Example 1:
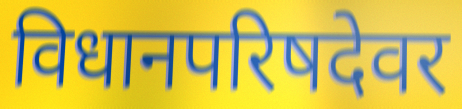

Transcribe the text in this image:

विधानपरिषदेवर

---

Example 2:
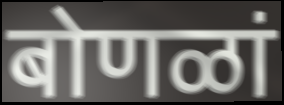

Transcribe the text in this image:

बोणळां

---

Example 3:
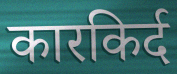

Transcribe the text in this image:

कारकिर्द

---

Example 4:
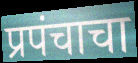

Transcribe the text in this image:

प्रपंचाचा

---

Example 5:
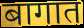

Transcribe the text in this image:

बागात